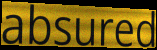
absured